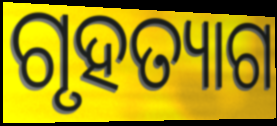
ଗୃହତ୍ୟାଗ